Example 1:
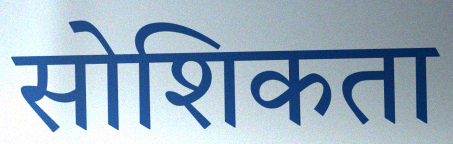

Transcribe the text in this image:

सोशिकता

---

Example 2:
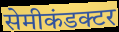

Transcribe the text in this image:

सेमीकंडक्टर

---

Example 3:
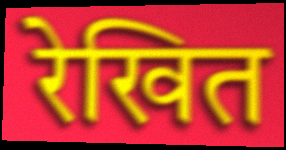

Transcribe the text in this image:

रेखित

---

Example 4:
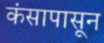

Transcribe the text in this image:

कंसापासून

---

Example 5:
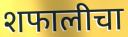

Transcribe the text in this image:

शफालीचा